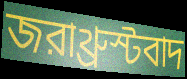
জরাথ্রুস্টবাদ